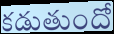
కడుతుందో